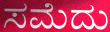
ಸಮೆದು